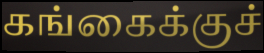
கங்கைக்குச்